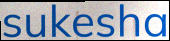
sukesha